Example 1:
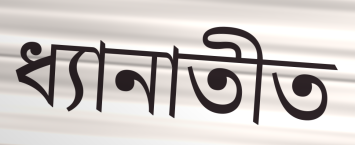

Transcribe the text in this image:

ধ্যানাতীত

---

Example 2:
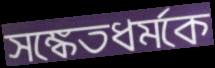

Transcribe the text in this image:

সঙ্কেতধর্মকে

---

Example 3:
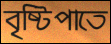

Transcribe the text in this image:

বৃষ্টিপাতে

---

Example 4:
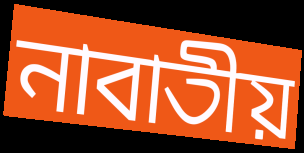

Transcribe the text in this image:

নাবাতীয়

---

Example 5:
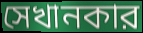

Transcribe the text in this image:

সেখানকার